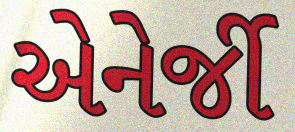
એનેર્જી